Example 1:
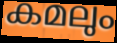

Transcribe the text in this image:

കമലും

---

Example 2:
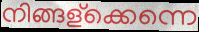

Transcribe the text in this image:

നിങ്ങള്ക്കെന്നെ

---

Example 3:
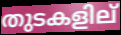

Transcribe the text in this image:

തുടകളില്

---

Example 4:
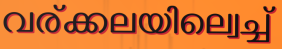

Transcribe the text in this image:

വര്ക്കലയില്വെച്ച്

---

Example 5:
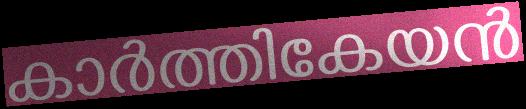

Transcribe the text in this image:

കാർത്തികേയൻ